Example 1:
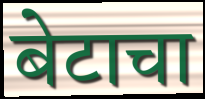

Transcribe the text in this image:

बेटाचा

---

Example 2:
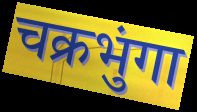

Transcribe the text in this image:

चक्रभुंगा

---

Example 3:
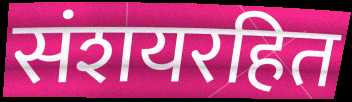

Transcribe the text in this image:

संशयरहित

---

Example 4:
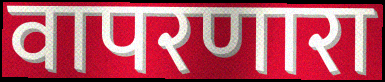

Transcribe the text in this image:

वापरणारा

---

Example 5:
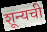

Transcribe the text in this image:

शून्यची